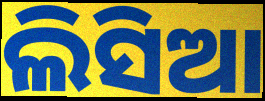
ଲିସିଆ